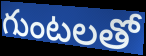
గుంటలతో